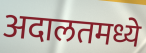
अदालतमध्ये